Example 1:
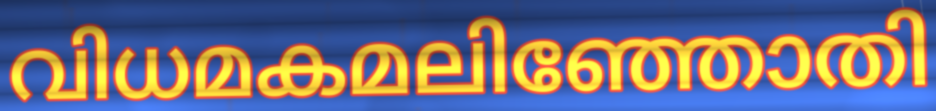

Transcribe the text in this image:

വിധമകമലിഞ്ഞോതി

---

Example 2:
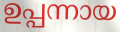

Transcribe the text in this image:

ഉപ്പന്നായ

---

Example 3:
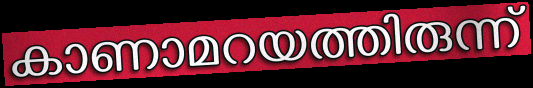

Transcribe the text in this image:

കാണാമറയത്തിരുന്ന്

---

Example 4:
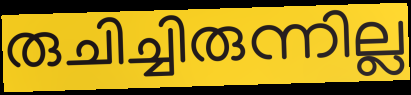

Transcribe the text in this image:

രുചിച്ചിരുന്നില്ല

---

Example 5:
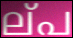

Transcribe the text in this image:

ല്‌പ